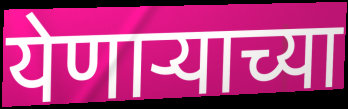
येणाऱ्याच्या